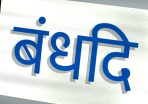
बंधदि